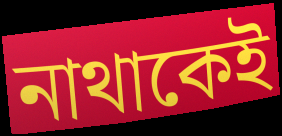
নাথাকেই